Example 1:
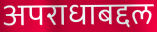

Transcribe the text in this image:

अपराधाबद्दल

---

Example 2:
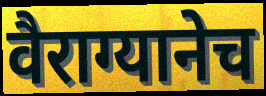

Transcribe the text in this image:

वैराग्यानेच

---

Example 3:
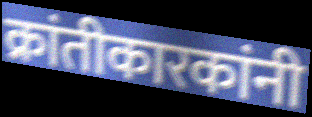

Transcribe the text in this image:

क्रांतीकारकांनी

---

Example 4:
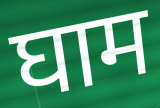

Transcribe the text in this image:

घाम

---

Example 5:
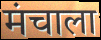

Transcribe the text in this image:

मंचाला